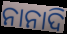
ନାନାଦି